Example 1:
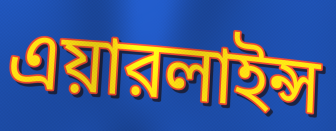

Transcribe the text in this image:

এয়ারলাইন্স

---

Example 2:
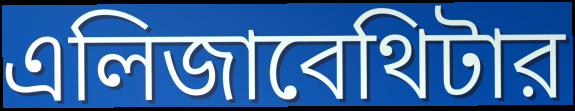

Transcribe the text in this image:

এলিজাবেথিটার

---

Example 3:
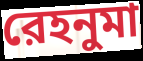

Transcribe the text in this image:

রেহনুমা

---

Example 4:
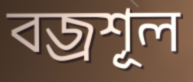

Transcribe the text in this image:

বজ্রশূল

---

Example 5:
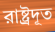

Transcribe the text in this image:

রাষ্ট্রদূত